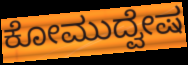
ಕೋಮುದ್ವೇಷ